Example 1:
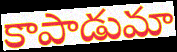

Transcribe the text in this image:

కాపాడుమా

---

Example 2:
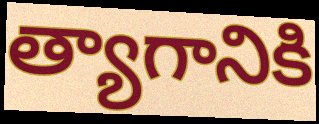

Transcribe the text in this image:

త్యాగానికి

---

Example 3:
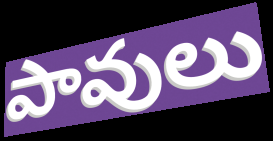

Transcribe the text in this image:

పావులు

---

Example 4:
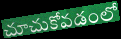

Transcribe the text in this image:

చూచుకోవడంలో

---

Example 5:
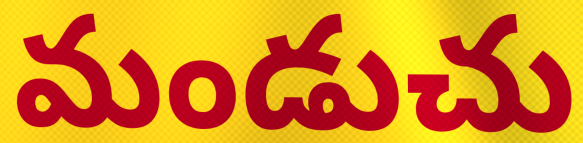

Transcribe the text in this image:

మండుచు